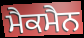
ਮੈਕਮੈਨ